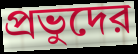
প্রভুদের